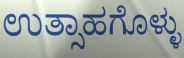
ಉತ್ಸಾಹಗೊಳ್ಳು